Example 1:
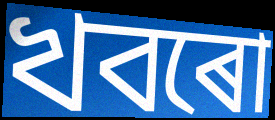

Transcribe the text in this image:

খবৰো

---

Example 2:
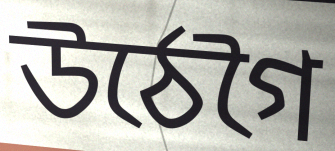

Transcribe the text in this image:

উঠেগৈ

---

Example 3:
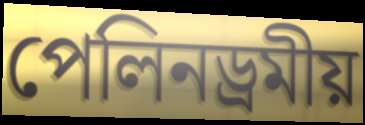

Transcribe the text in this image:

পেলিনড্ৰমীয়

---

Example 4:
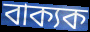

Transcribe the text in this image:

বাক্যক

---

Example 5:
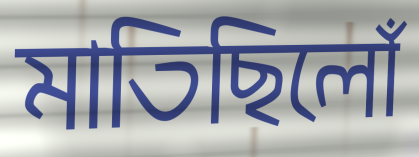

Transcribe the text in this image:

মাতিছিলোঁ